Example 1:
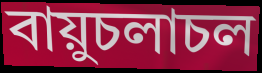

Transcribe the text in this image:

বায়ুচলাচল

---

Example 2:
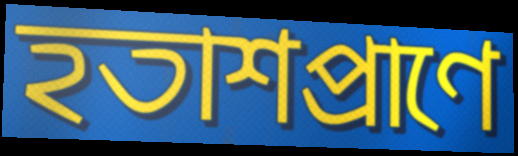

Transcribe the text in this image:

হতাশপ্রাণে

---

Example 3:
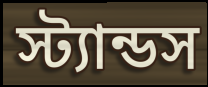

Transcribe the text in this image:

স্ট্যান্ডস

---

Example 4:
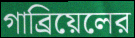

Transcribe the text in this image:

গাব্রিয়েলের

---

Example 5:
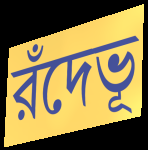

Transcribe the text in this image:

রঁদেভূ